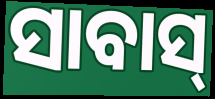
ସାବାସ୍